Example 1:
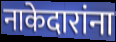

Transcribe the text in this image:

नाकेदारांना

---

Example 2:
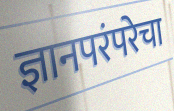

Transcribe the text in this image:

ज्ञानपरंपरेचा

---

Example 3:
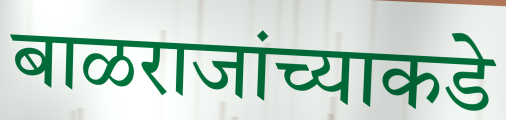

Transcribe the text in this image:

बाळराजांच्याकडे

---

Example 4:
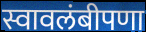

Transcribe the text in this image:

स्वावलंबीपणा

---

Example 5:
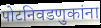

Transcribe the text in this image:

पोटनिवडणुकांना